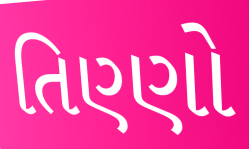
તિણ્ણો